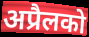
अप्रैलको